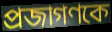
প্রজাগণকে